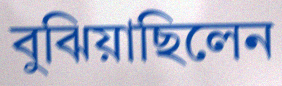
বুঝিয়াছিলেন